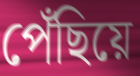
পেঁছিয়ে